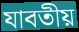
যাবতীয়